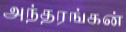
அந்தரங்கன்